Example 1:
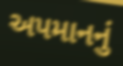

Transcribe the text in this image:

અપમાનનું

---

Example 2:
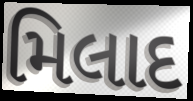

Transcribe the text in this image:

મિલાદ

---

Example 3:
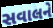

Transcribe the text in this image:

સવાલને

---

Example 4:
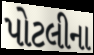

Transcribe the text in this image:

પોટલીના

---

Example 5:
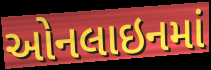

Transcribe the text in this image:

ઓનલાઇનમાં